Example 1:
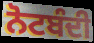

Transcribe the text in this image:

ਨੋਟਬੰਦੀ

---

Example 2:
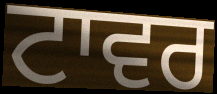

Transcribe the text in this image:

ਟਾਵਰ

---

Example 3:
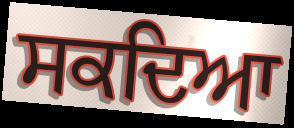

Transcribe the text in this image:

ਸਕਦਿਆ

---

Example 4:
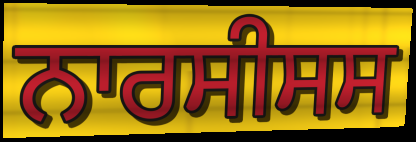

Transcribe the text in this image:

ਨਾਰਸੀਸਸ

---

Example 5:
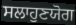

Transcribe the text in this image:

ਸਲਾਹੁਣਯੋਗ